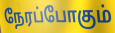
நேரப்போகும்